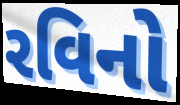
રવિનો